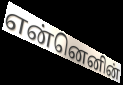
என்னெனின்